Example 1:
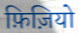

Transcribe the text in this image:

फ़िज़ियो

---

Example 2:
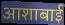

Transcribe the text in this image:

आशाबाई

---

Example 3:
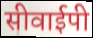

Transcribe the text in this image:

सीवाईपी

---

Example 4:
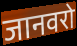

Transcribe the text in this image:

जानवरो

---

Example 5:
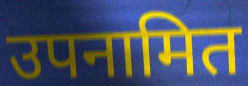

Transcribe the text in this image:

उपनामित